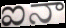
ఐనా